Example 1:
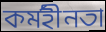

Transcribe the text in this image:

কৰ্মহীনতা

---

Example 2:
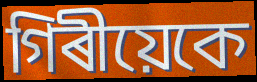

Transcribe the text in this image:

গিৰীয়েকে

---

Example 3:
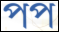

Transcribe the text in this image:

পপ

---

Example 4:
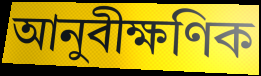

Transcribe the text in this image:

আনুবীক্ষণিক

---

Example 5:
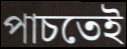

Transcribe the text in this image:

পাচতেই